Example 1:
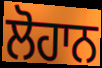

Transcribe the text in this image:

ਲੋਹਾਨ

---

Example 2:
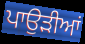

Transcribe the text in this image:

ਪਾਉੜੀਆਂ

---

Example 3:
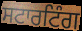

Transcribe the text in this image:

ਸਟਾਰਟਿੰਗ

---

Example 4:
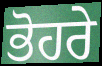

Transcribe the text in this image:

ਭੋਹਰੇ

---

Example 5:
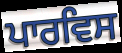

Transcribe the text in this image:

ਪਾਰਵਿਸ